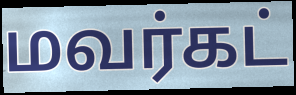
மவர்கட்